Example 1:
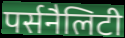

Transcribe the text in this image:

पर्सनैलिटी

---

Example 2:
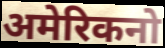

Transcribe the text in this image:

अमेरिकनो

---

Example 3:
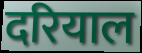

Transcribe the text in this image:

दरियाल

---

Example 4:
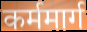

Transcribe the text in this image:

कर्ममार्ग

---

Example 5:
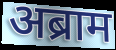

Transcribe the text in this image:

अब्राम